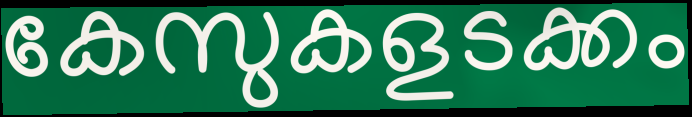
കേസുകളടക്കം